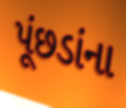
પૂંછડાંના